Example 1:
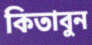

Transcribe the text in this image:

কিতাবুন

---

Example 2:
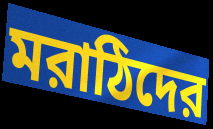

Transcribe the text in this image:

মরাঠিদের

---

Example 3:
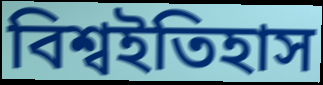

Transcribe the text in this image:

বিশ্বইতিহাস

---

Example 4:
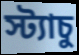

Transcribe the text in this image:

স্ট্যাচু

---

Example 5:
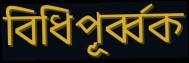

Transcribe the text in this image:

বিধিপূর্ব্বক